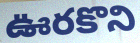
ఊరకొని